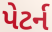
પેટર્ન